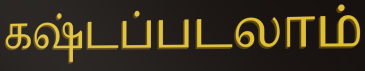
கஷ்டப்படலாம்